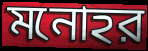
মনোহর